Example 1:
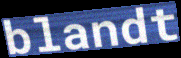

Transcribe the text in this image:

blandt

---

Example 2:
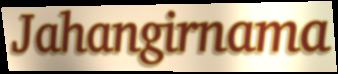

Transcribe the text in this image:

Jahangirnama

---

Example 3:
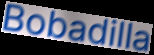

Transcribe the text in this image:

Bobadilla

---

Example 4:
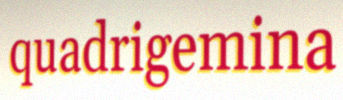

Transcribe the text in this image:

quadrigemina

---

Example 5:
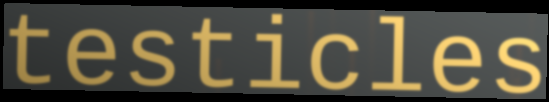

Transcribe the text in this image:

testicles